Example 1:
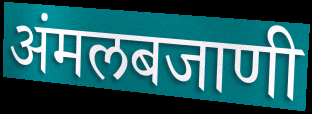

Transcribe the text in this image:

अंमलबजाणी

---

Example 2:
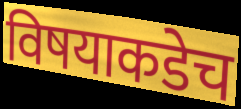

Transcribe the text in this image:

विषयाकडेच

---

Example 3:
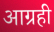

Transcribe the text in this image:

आग्रही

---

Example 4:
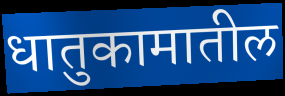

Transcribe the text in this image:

धातुकामातील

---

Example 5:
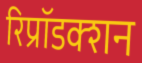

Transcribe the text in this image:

रिप्रॉडक्शन